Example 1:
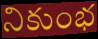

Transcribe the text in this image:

నికుంభ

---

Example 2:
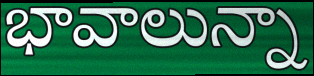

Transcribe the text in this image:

భావాలున్నా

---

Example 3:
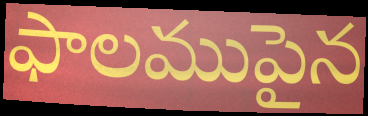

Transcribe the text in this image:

ఫాలముపైన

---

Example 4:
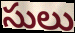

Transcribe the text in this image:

సులు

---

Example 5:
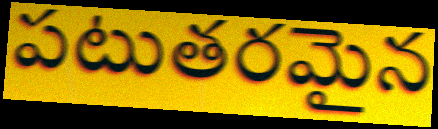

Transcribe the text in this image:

పటుతరమైన